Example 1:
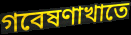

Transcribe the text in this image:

গবেষণাখাতে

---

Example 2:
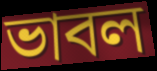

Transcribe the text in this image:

ভাবল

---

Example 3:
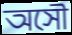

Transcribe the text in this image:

অসৌ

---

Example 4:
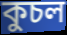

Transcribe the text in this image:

কুচল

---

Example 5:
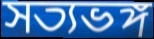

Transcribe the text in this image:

সত্যভঙ্গ